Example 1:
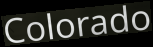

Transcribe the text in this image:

Colorado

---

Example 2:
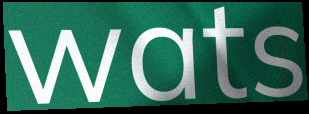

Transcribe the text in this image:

wats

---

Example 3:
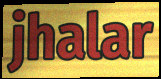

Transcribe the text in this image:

jhalar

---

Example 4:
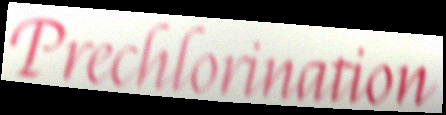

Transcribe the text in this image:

Prechlorination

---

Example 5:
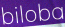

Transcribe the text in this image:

biloba